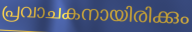
പ്രവാചകനായിരിക്കും